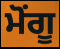
ਮੋਂਗੂ